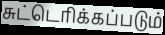
சுட்டெரிக்கப்படும்